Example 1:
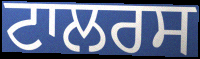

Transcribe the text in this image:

ਟਾਲਰਸ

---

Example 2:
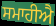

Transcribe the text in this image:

ਸਮਾਹੀਐ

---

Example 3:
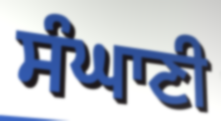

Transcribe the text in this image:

ਸੰਘਾਣੀ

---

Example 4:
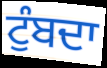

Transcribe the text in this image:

ਟੁੰਬਦਾ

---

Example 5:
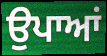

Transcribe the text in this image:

ਉਪਾਆਂ